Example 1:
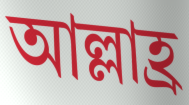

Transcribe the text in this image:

আল্লাহ্র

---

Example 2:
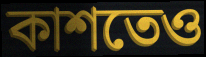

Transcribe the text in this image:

কাশতেও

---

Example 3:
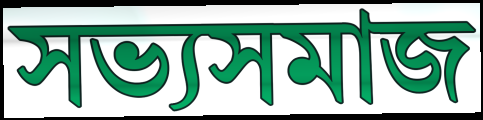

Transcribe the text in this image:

সভ্যসমাজ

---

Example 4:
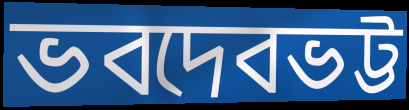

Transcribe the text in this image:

ভবদেবভট্ট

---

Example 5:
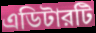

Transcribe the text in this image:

এডিটারটি